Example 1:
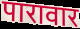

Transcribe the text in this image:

पारावार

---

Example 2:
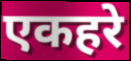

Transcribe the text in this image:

एकहरे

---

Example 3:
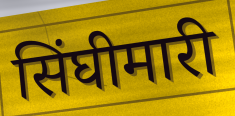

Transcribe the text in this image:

सिंघीमारी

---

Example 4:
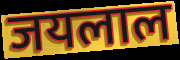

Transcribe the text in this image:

जयलाल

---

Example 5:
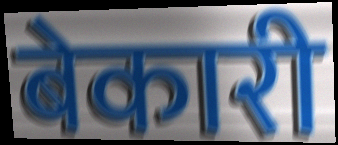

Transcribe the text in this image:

बेकारी